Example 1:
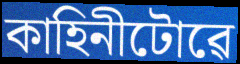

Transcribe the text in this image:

কাহিনীটোৱে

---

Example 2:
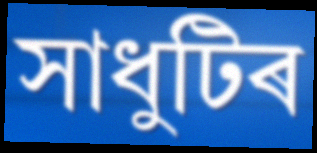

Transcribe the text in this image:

সাধুটিৰ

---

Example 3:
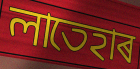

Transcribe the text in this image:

লাতেহাৰ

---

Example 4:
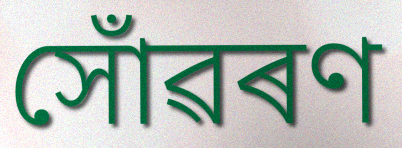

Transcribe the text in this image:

সোঁৱৰণ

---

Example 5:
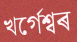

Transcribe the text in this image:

খৰ্গেশ্বৰ